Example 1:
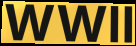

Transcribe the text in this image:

WWII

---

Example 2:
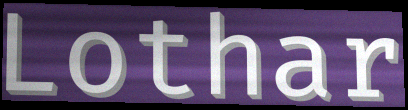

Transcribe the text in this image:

Lothar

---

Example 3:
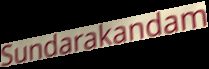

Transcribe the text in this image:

Sundarakandam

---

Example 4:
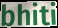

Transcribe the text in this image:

bhiti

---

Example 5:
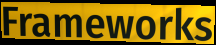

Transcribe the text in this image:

Frameworks